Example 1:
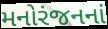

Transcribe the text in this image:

મનોરંજનનાં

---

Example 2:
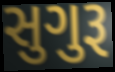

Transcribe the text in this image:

સુગુરૂ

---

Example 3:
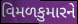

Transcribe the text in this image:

વિમળકુમારને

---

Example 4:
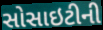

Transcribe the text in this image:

સોસાઇટીની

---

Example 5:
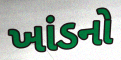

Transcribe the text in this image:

ખાંડનો